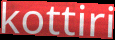
kottiri